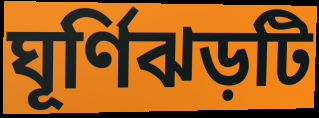
ঘূর্ণিঝড়টি